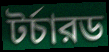
টর্চারড